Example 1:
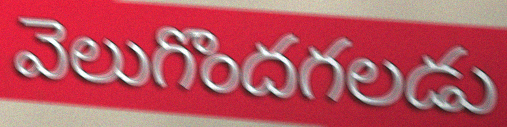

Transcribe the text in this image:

వెలుగొందగలడు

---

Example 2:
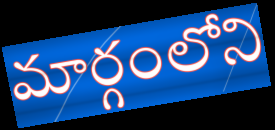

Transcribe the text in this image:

మార్గంలోని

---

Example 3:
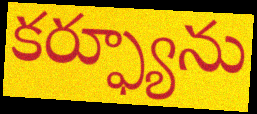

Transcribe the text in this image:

కర్ఫ్యూను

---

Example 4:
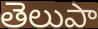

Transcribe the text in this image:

తెలుపా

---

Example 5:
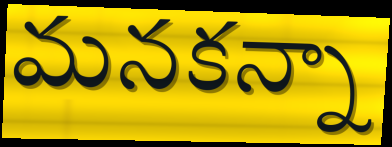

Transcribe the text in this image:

మనకన్నా